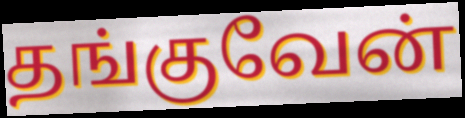
தங்குவேன்